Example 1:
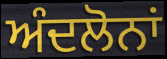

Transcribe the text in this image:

ਅੰਦਲੋਨਾਂ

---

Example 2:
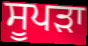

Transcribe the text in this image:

ਸੂਪੜਾ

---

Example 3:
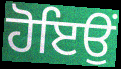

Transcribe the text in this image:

ਹੋਇਉਂ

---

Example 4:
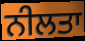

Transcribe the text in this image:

ਨੀਲਤਾ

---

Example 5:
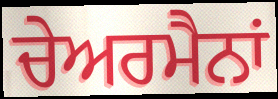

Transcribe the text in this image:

ਚੇਅਰਮੈਨਾਂ